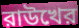
রাউখের